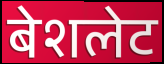
बेशलेट